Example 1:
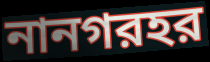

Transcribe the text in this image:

নানগরহর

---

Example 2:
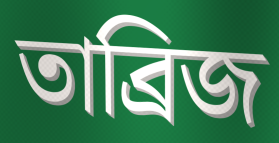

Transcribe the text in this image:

তাব্রিজ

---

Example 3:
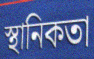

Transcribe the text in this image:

স্থানিকতা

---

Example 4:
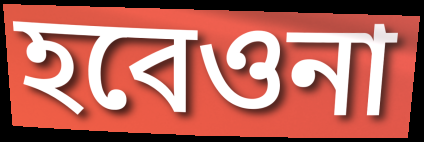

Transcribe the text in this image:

হবেওনা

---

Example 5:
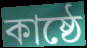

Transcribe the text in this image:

কাষ্ঠে